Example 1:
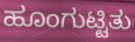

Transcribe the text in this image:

ಹೂಂಗುಟ್ಟಿತು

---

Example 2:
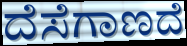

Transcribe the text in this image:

ದೆಸೆಗಾಣದೆ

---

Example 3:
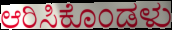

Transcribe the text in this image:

ಆರಿಸಿಕೊಂಡಳು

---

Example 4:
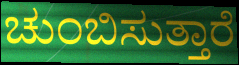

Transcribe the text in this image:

ಚುಂಬಿಸುತ್ತಾರೆ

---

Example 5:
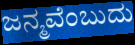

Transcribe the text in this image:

ಜನ್ಮವೆಂಬುದು